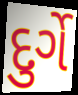
દુર્ગે